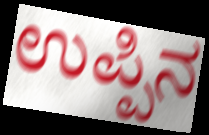
ಉಪ್ಪಿನ